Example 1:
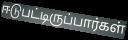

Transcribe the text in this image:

ஈடுபட்டிருப்பார்கள்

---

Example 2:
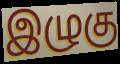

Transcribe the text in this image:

இழுகு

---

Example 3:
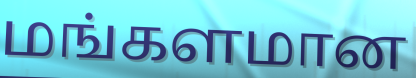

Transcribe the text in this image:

மங்களமான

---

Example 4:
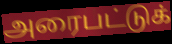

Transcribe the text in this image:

அரைபட்டுக்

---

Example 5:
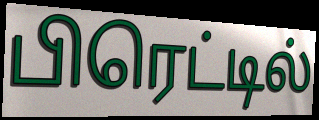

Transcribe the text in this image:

பிரெட்டில்